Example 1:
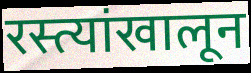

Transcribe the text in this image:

रस्त्यांखालून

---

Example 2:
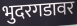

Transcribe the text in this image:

भुदरगडावर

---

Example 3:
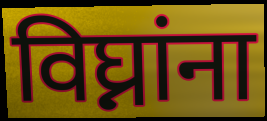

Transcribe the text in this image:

विघ्नांना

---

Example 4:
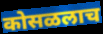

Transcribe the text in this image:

कोसळलाच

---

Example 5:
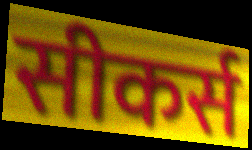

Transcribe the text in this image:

सीकर्स